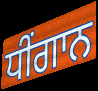
ਧੀਂਗਾਨ